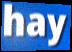
hay